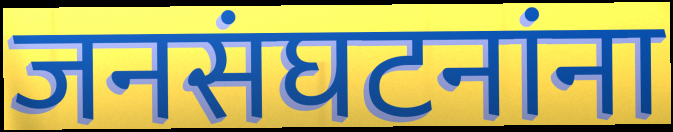
जनसंघटनांना